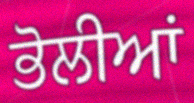
ਭੋਲੀਆਂ